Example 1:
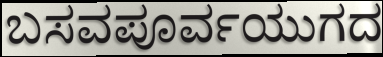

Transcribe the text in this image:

ಬಸವಪೂರ್ವಯುಗದ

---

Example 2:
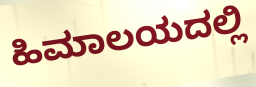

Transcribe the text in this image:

ಹಿಮಾಲಯದಲ್ಲಿ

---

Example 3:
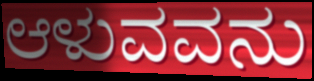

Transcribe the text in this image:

ಆಳುವವನು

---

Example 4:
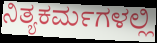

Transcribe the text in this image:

ನಿತ್ಯಕರ್ಮಗಳಲ್ಲಿ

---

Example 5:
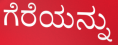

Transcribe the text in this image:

ಗೆರೆಯನ್ನು